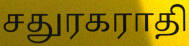
சதுரகராதி